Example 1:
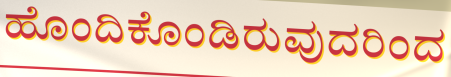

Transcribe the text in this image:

ಹೊಂದಿಕೊಂಡಿರುವುದರಿಂದ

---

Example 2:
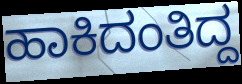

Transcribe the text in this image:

ಹಾಕಿದಂತಿದ್ದ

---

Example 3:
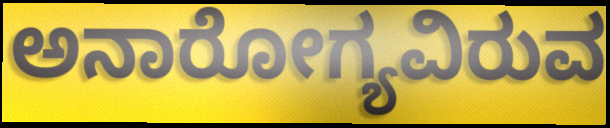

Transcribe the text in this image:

ಅನಾರೋಗ್ಯವಿರುವ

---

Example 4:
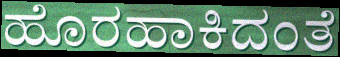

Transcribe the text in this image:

ಹೊರಹಾಕಿದಂತೆ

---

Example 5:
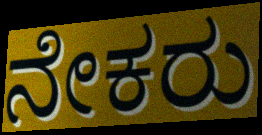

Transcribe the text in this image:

ನೇಕರು